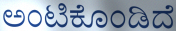
ಅಂಟಿಕೊಂಡಿದೆ